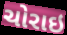
ચોરાઇ